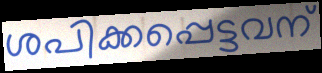
ശപിക്കപ്പെട്ടവന്